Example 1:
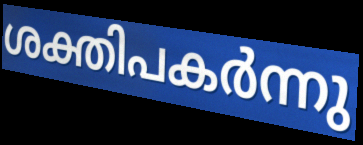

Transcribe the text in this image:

ശക്തിപകർന്നു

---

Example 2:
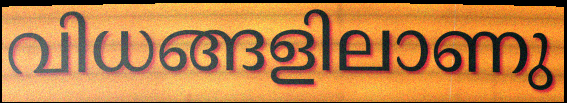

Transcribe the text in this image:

വിധങ്ങളിലാണു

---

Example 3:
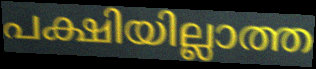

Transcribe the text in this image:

പക്ഷിയില്ലാത്ത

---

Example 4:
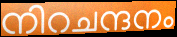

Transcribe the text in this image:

നിറചന്ദനം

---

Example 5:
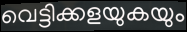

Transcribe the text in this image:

വെട്ടിക്കളയുകയും